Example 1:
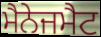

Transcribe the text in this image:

ਮੈਨੇਜਮੈਟ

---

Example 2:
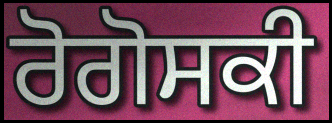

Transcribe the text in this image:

ਰੋਗੋਸਕੀ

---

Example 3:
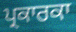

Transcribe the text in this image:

ਪ੍ਰਕਾਰਕਾ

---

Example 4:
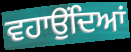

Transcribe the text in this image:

ਵਹਾਉਂਦਿਆਂ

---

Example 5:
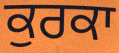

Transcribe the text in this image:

ਕੁਰਕਾ